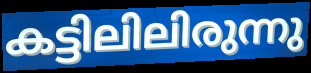
കട്ടിലിലിരുന്നു